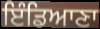
ਇੰਡਿਆਣਾ